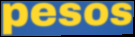
pesos